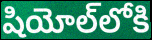
షియోల్‌లోకి